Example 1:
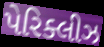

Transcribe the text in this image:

પેરિક્લીઝ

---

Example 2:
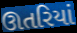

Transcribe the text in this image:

ઊતરિયાં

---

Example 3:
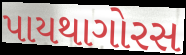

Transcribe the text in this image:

પાયથાગોરસ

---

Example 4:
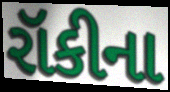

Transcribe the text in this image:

રૉકીના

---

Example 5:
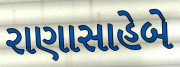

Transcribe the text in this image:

રાણાસાહેબે